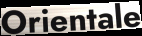
Orientale